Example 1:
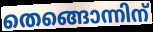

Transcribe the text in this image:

തെങ്ങൊന്നിന്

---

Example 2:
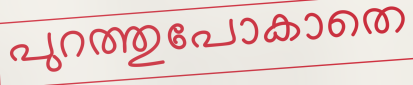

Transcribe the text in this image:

പുറത്തുപോകാതെ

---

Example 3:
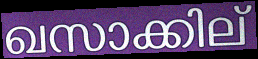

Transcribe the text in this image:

ഖസാക്കില്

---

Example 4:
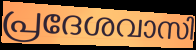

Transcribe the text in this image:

പ്രദേശവാസി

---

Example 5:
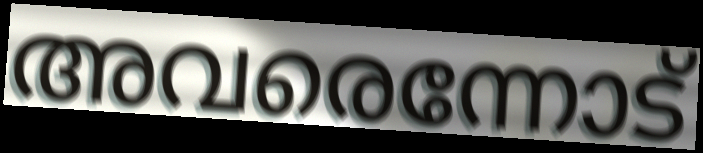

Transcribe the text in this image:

അവരെന്നോട്